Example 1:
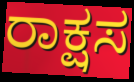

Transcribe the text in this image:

ರಾಕ್ಷಸ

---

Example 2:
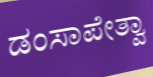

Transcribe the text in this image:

ಡಂಸಾಪೇತ್ವಾ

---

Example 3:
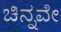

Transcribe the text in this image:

ಚಿನ್ನವೇ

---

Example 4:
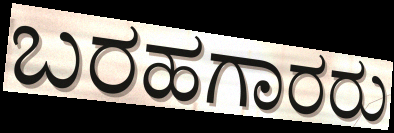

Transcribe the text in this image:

ಬರಹಗಾರರು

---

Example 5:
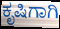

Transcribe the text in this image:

ಕೃಷಿಗಾಗಿ